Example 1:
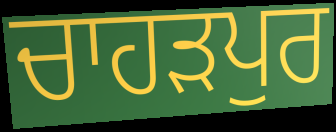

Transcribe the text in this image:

ਚਾਹਡ਼ਪੁਰ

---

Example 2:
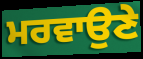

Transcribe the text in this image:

ਮਰਵਾਉਣੇ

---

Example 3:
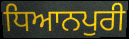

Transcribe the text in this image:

ਧਿਆਨਪੁਰੀ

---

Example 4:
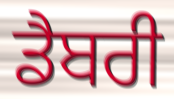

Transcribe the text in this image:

ਡੈਬਰੀ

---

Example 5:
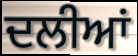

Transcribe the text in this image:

ਦਲੀਆਂ